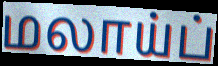
மலாய்ப்